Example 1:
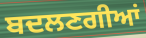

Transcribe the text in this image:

ਬਦਲਣਗੀਆਂ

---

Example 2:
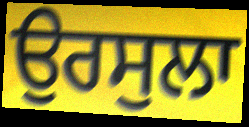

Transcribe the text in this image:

ਉਰਸੁਲਾ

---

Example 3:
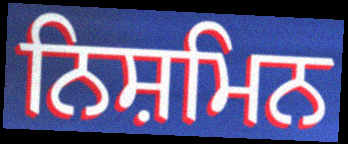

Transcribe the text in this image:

ਨਿਸ਼ਮਿਨ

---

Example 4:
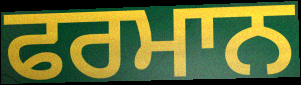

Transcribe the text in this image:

ਫਰਮਾਨ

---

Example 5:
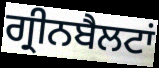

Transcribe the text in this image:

ਗ੍ਰੀਨਬੈਲਟਾਂ